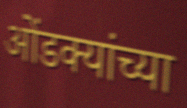
ओंडक्यांच्या